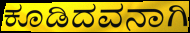
ಕೂಡಿದವನಾಗಿ